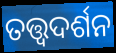
ତତ୍ତ୍ଵଦର୍ଶନ